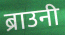
ब्राउनी